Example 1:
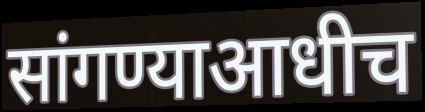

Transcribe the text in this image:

सांगण्याआधीच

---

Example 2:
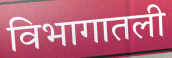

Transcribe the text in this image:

विभागातली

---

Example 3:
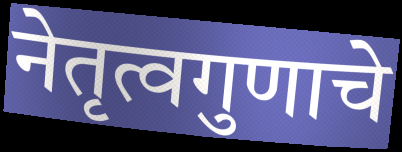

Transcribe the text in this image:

नेतृत्वगुणाचे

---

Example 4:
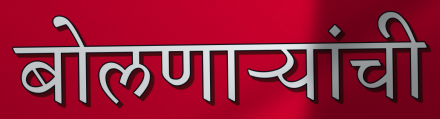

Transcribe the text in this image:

बोलणाऱ्यांची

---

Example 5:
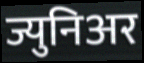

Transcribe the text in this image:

ज्युनिअर